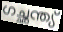
ഗച്ഛന്ത്യ്